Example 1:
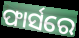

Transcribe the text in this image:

ଫାର୍ସରେ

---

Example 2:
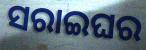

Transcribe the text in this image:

ସରାଇଘର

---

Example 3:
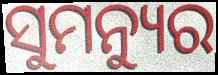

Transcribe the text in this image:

ସୁମନ୍ୟୁର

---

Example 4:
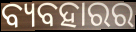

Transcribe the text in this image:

ବ୍ୟବହାରର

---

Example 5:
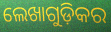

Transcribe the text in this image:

ଲେଖାଗୁଡ଼ିକର